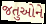
જતુઓને